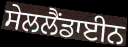
ਸੇਲਲੈਂਡਾਈਨ